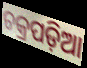
ଚକ୍ରପଡ଼ିଆ